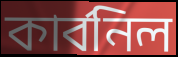
কার্বনিল